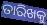
ତାରିଖକୁ